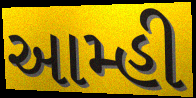
આમ્હી